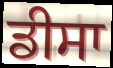
ਡੀਸਾ